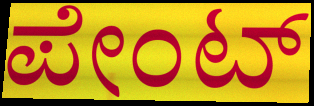
ಪೇಂಟ್